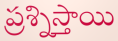
ప్రశ్నిస్తాయి